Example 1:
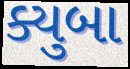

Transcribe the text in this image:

ક્યુબા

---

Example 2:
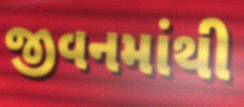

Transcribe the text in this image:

જીવનમાંથી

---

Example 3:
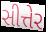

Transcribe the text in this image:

સીત્તેર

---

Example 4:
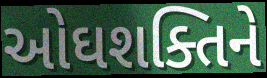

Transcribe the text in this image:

ઓઘશક્તિને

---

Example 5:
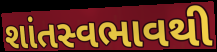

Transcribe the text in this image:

શાંતસ્વભાવથી